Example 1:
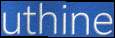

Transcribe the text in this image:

uthine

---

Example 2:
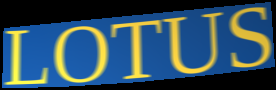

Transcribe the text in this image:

LOTUS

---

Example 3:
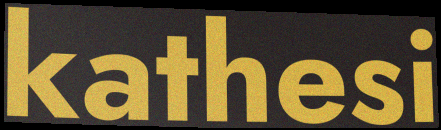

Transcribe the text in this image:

kathesi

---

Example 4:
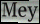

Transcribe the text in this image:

Mey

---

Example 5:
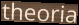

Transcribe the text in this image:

theoria